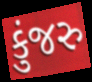
કુંજરુ